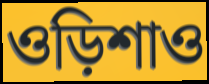
ওড়িশাও